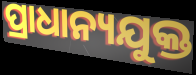
ପ୍ରାଧାନ୍ୟଯୁକ୍ତ